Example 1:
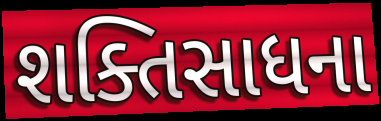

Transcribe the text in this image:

શક્તિસાધના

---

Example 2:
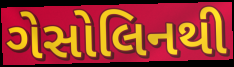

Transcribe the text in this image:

ગેસોલિનથી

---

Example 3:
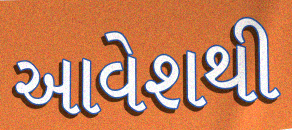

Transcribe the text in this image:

આવેશથી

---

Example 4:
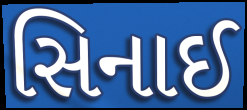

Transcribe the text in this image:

સિનાઈ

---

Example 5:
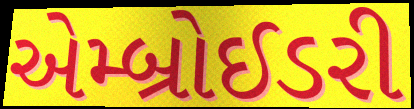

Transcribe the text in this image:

એમ્બ્રોઈડરી